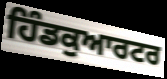
ਹਿੰਡਕੁਆਰਟਰ